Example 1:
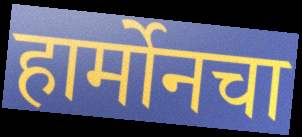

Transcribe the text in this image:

हार्मोनचा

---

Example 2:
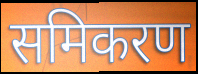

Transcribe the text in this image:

समिकरण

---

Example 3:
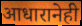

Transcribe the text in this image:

आधारानेही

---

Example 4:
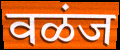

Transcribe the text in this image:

वळंज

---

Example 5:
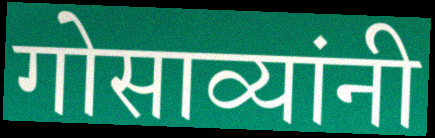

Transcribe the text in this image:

गोसाव्यांनी